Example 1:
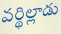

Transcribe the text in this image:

వర్థిల్లాడు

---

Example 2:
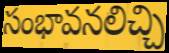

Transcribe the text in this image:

సంభావనలిచ్చి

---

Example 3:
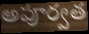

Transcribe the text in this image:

అపూర్వత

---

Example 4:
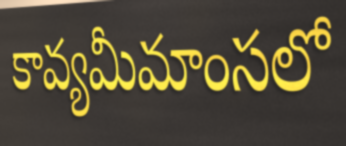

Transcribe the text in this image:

కావ్యమీమాంసలో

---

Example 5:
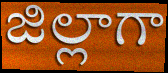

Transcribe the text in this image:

జిల్లాగా